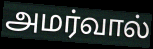
அமர்வால்